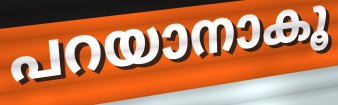
പറയാനാകൂ